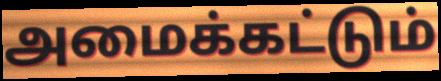
அமைக்கட்டும்